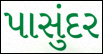
પાસુંદર